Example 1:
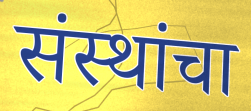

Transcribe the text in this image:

संस्थांचा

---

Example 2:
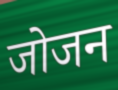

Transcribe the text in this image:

जोजन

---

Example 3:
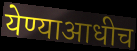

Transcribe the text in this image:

येण्याआधीच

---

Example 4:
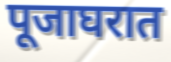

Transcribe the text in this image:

पूजाघरात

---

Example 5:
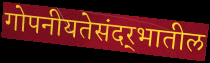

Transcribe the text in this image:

गोपनीयतेसंदर्भातील